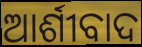
ଆର୍ଶୀବାଦ